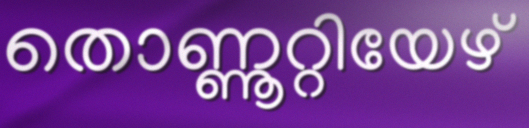
തൊണ്ണൂറ്റിയേഴ്